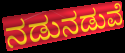
ನಡುನಡುವೆ